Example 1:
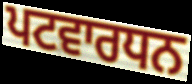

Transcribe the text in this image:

ਪਟਵਾਰਧਨ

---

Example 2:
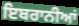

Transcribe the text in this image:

ਇਬਰਾਨੀਆਂ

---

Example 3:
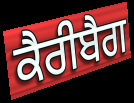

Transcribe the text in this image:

ਕੈਰੀਬੈਗ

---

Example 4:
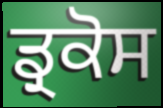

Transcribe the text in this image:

ਡ੍ਰਕੋਸ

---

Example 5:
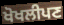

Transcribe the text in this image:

ਖੋਖਲੀਪਣ